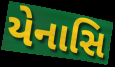
યેનાસિ